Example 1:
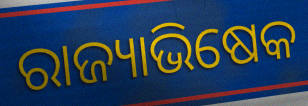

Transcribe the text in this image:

ରାଜ୍ୟାଭିଷେକ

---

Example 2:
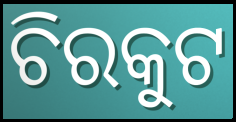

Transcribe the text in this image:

ଚିରକୁଟ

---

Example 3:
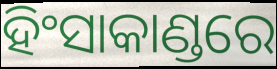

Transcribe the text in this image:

ହିଂସାକାଣ୍ଡରେ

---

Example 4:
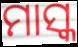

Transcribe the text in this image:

ମାସ୍କ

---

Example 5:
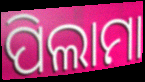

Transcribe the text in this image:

ପିଲାମା